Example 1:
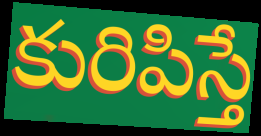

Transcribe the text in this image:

కురిపిస్తే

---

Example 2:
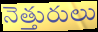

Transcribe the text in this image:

నెత్తురులు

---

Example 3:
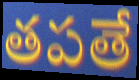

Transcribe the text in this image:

తపతే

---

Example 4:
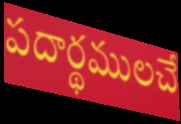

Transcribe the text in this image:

పదార్థములచే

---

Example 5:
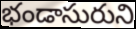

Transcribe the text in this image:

భండాసురుని